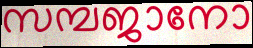
സമ്പജാനോ